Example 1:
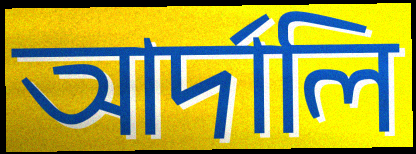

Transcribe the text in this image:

আর্দালি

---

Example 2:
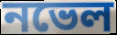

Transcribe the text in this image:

নভেল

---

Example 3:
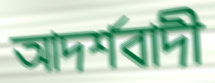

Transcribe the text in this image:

আদর্শবাদী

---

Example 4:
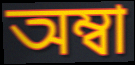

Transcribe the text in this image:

অম্বা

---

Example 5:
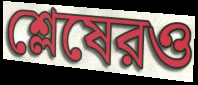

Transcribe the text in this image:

শ্লেষেরও